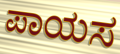
ಪಾಯಸ